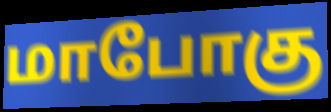
மாபோகு